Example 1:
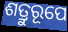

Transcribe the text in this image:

ଶତ୍ରୁରୂପେ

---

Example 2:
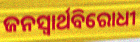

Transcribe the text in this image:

ଜନସ୍ଵାର୍ଥବିରୋଧୀ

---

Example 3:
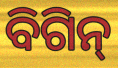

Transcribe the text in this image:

ବିଗିନ୍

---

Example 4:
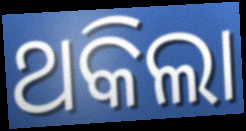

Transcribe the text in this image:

ଥକିଲା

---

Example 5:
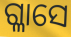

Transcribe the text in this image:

ଗ୍ଳାସେ